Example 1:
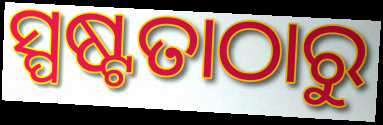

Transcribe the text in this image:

ସ୍ପଷ୍ଟତାଠାରୁ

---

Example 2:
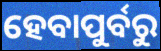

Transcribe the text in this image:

ହେବାପୁର୍ବରୁ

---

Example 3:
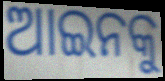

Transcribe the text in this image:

ଆଇନକୁ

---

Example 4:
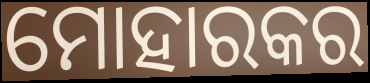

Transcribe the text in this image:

ମୋହାରକର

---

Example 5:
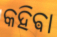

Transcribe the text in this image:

କହିଵା